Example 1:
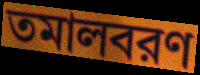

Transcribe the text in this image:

তমালবরণ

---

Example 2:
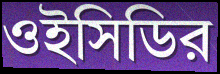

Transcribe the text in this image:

ওইসিডির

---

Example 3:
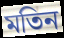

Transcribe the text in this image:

মতিন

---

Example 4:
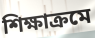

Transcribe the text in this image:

শিক্ষাক্রমে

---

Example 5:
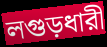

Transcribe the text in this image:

লগুড়ধারী